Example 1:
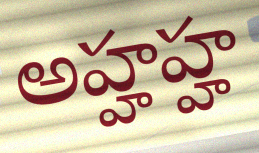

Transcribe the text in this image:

అహ్హహ్హ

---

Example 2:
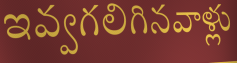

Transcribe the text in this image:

ఇవ్వగలిగినవాళ్లు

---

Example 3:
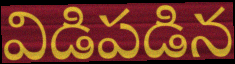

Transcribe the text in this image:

విడిపడిన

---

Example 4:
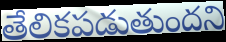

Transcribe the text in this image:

తేలికపడుతుందని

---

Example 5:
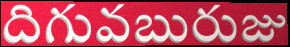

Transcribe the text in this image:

దిగువబురుజు